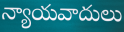
న్యాయవాదులు